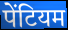
पेंटियम